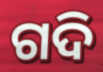
ଗଦି